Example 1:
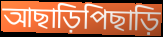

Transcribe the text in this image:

আছাড়িপিছাড়ি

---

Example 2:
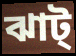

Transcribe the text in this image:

ঝাট্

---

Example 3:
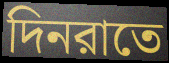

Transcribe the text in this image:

দিনরাতে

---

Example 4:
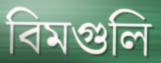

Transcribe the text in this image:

বিমগুলি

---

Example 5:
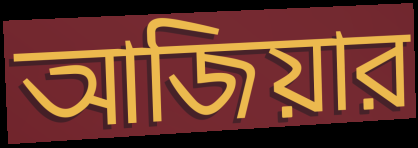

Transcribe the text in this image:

আজিয়ার